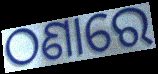
ଠଣାରେ